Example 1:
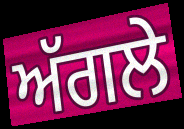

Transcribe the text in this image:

ਅੱਗਲੇ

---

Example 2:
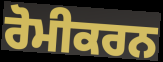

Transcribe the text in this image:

ਰੋਮੀਕਰਨ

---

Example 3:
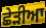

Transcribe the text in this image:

ਛੇੜੀਆ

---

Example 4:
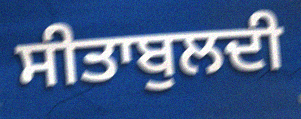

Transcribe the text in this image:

ਸੀਤਾਬੁਲਦੀ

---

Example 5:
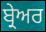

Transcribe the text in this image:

ਬ੍ਰੇਅਰ